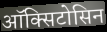
ऑक्सिटोसिन